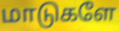
மாடுகளே